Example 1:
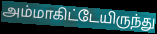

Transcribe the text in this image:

அம்மாகிட்டேயிருந்து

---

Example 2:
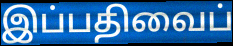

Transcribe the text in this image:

இப்பதிவைப்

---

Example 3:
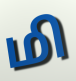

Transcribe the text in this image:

மி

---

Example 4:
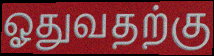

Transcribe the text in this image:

ஓதுவதற்கு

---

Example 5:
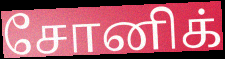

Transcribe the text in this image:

சோனிக்